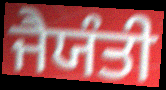
ਜੈਯੰਤੀ